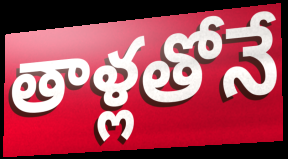
తాళ్లతోనే